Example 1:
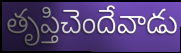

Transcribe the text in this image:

తృప్తిచెందేవాడు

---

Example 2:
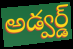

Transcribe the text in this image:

అడ్వర్డ్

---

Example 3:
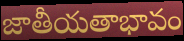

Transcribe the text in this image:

జాతీయతాభావం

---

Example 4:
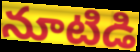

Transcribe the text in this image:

నూటిడి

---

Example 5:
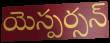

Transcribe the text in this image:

యెస్పర్సన్